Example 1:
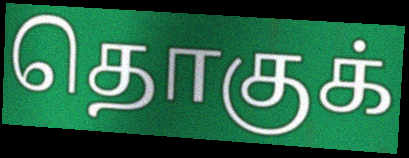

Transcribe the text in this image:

தொகுக்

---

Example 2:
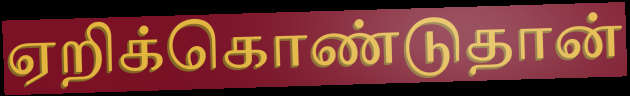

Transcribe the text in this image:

ஏறிக்கொண்டுதான்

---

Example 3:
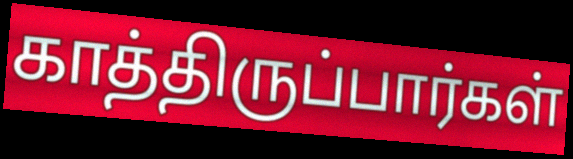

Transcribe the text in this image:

காத்திருப்பார்கள்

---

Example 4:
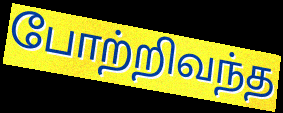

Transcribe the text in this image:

போற்றிவந்த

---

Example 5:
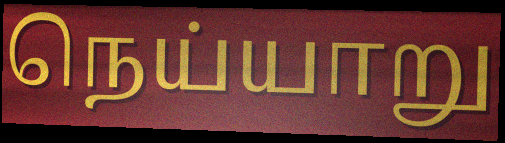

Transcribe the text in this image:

நெய்யாறு